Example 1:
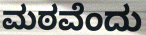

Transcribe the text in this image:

ಮಠವೆಂದು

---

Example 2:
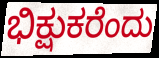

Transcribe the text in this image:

ಭಿಕ್ಷುಕರೆಂದು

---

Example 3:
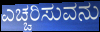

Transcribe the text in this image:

ಎಚ್ಚರಿಸುವನು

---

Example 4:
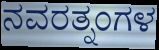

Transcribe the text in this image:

ನವರತ್ನಂಗಳ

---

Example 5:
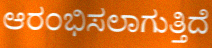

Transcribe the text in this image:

ಆರಂಭಿಸಲಾಗುತ್ತಿದೆ